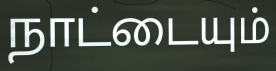
நாட்டையும்